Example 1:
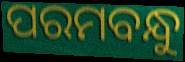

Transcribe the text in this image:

ପରମବନ୍ଧୁ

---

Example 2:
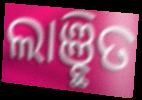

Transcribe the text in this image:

ଲାଞ୍ଛିତ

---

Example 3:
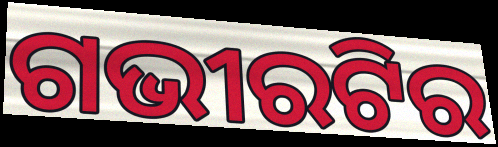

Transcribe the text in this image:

ଗଭୀରଟିର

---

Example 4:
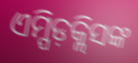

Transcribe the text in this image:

ଏମ୍ପିଡ଼କ୍ଲିସଙ୍କ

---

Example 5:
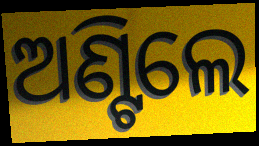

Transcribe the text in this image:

ଅଣ୍ଟିଲେ